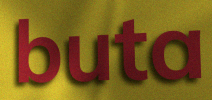
buta